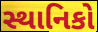
સ્થાનિકો